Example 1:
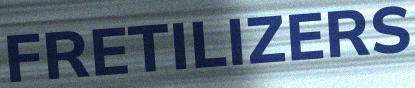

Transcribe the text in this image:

FRETILIZERS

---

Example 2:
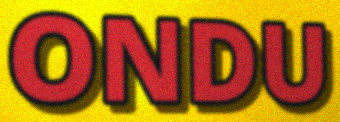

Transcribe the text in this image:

ONDU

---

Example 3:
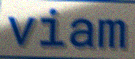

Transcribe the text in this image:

viam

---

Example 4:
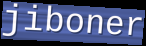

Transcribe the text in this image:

jiboner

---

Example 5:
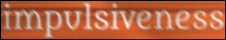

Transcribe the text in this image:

impulsiveness